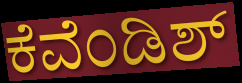
ಕೆವೆಂಡಿಶ್